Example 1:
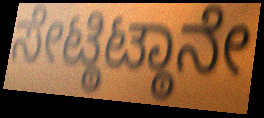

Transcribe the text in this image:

ಸೇಟ್ಠಿಟ್ಠಾನೇ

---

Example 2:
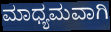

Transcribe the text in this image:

ಮಾಧ್ಯಮವಾಗಿ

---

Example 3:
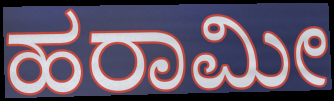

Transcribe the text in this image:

ಹರಾಮೀ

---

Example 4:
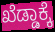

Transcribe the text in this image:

ಖೆಡ್ಡಾಕ್ಕೆ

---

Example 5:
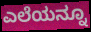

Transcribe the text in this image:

ಎಲೆಯನ್ನೂ